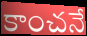
కాంచనే